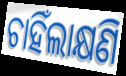
ଚାହିଁଲାକ୍ଷଣି